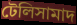
টেলিসামাদ